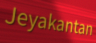
Jeyakantan